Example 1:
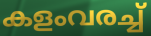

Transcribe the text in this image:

കളംവരച്ച്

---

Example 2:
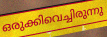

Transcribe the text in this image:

ഒരുക്കിവെച്ചിരുന്നു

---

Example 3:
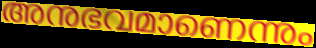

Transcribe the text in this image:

അനുഭവമാണെന്നും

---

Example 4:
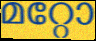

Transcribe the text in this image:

മറ്റോ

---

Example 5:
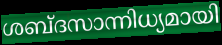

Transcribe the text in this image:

ശബ്ദസാന്നിധ്യമായി